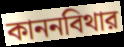
কাননবিথার